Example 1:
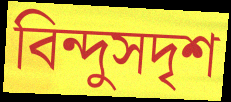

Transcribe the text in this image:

বিন্দুসদৃশ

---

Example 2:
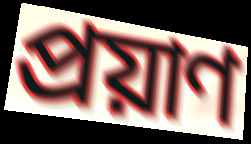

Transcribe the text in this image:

প্ৰয়াণ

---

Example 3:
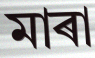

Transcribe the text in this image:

মাৰা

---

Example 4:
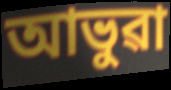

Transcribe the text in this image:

আভুৱা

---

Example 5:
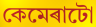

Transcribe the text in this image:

কেমেৰাটো